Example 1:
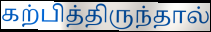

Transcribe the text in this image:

கற்பித்திருந்தால்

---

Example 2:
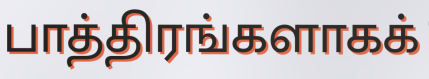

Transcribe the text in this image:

பாத்திரங்களாகக்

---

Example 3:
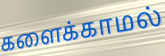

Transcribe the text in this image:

களைக்காமல்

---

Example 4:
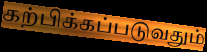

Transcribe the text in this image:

கற்பிக்கப்படுவதும்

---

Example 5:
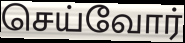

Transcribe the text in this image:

செய்வோர்